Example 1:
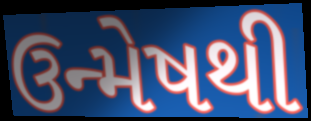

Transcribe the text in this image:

ઉન્મેષથી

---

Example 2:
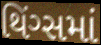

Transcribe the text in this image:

થિંગ્સમાં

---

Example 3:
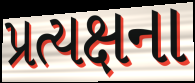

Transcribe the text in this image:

પ્રત્યક્ષના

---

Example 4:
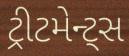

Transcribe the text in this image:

ટ્રીટમેન્ટ્સ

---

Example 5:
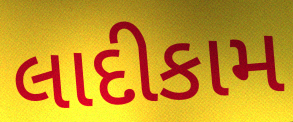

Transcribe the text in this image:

લાદીકામ